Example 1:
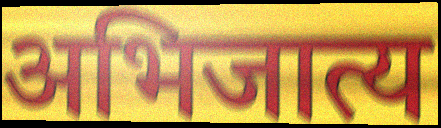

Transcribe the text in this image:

अभिजात्य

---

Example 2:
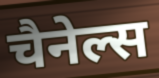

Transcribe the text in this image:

चैनेल्स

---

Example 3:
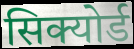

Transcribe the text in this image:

सिक्‍योर्ड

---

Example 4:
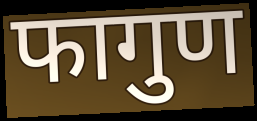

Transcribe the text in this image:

फागुण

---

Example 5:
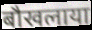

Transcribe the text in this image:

बौखलाया